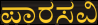
ಪಾರಸವಿ